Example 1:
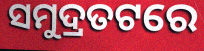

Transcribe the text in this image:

ସମୁଦ୍ରତଟରେ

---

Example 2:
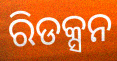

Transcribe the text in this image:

ରିଡକ୍ସନ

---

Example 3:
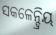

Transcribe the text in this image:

ସକଳେନ୍ଦ୍ରିୟ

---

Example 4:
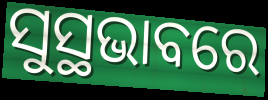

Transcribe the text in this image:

ସୁସ୍ଥଭାବରେ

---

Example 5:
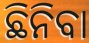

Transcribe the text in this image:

ଛିନିବା